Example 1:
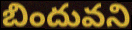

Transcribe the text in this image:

బిందువని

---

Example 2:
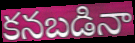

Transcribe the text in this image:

కనబడినా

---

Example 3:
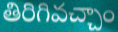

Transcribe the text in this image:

తిరిగివచ్చాం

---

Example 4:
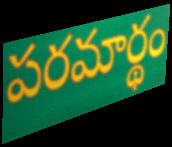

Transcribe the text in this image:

పరమార్థం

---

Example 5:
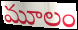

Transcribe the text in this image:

మూలం